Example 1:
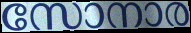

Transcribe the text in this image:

സോനാര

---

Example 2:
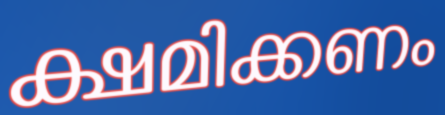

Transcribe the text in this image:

ക്ഷമിക്കണം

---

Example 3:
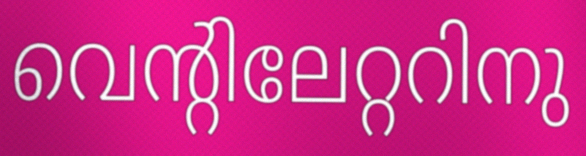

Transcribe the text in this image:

വെന്റിലേറ്ററിനു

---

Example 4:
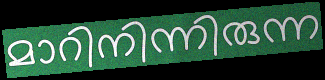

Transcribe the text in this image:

മാറിനിന്നിരുന്ന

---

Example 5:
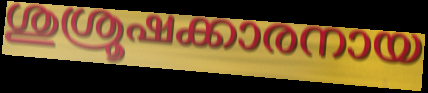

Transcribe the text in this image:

ശുശ്രൂഷക്കാരനായ